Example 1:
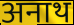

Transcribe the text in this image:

अनाथ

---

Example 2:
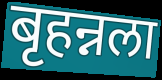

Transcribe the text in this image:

बृहन्नला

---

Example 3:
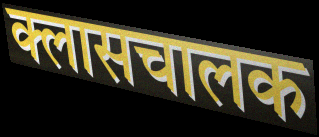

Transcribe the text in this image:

क्‍लासचालक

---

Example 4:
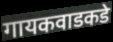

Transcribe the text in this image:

गायकवाडकडे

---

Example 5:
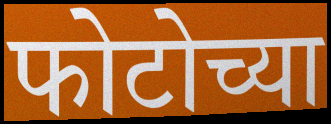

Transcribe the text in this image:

फोटोच्या